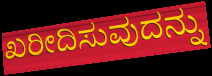
ಖರೀದಿಸುವುದನ್ನು